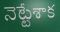
నెట్టేశాక